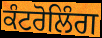
ਕੰਟਰੋਲਿੰਗ